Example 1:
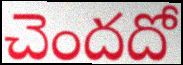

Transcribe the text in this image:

చెందదో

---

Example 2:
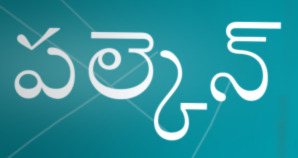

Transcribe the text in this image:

పల్కెన్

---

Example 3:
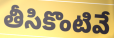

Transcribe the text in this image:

తీసికొంటివే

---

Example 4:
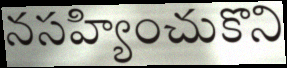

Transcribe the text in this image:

నసహ్యించుకొని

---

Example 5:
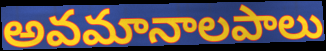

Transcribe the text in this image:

అవమానాలపాలు